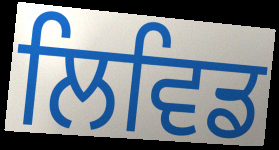
ਲਿਵਿਡ